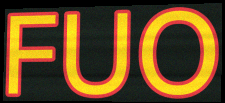
FUO